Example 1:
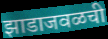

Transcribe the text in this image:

झाडाजवळची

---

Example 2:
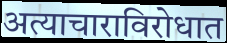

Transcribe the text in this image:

अत्याचाराविरोधात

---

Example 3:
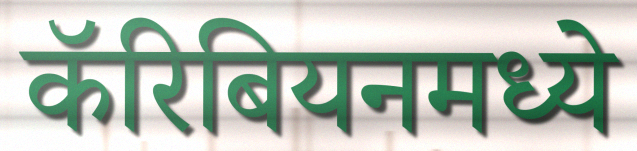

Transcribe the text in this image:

कॅरिबियनमध्ये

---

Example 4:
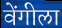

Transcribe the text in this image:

वेंगीला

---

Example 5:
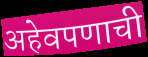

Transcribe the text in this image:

अहेवपणाची